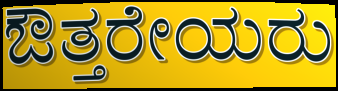
ಔತ್ತರೇಯರು